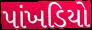
પાંખડિયો